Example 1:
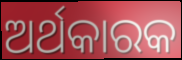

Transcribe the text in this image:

ଅର୍ଥକାରକ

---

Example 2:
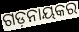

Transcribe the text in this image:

ଗଡ଼ନାୟକର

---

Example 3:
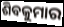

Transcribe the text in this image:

ଶିବକୁମାର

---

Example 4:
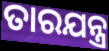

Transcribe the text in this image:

ତାରଯନ୍ତ୍ର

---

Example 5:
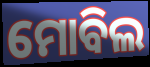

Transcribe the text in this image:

ମୋବିଲ